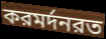
করমর্দনরত